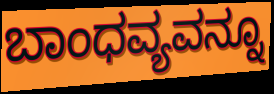
ಬಾಂಧವ್ಯವನ್ನೂ